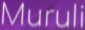
Muruli